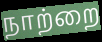
நாற்றை